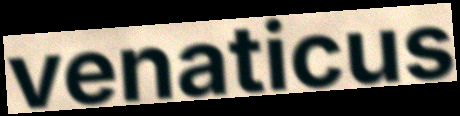
venaticus